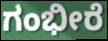
ಗಂಭೀರೆ